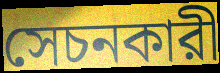
সেচনকারী